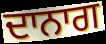
ਦਾਨਾਗ